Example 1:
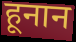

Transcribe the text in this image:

हूनान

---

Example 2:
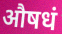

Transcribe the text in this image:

औषधं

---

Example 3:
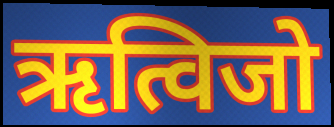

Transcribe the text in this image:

ऋत्विजो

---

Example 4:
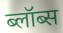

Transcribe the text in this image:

ब्लॉब्स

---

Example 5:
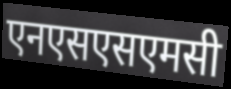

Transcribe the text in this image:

एनएसएसएमसी